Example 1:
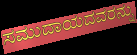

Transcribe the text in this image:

ಸಮುದಾಯದವರನ್ನು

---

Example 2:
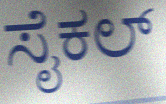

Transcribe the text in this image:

ಸೈಕಲ್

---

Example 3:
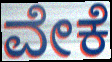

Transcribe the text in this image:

ವೇಕೆ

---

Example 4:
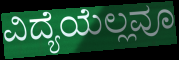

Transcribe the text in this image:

ವಿದ್ಯೆಯೆಲ್ಲವೂ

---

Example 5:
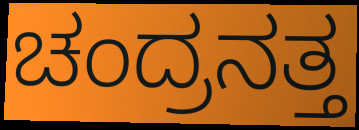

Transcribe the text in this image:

ಚಂದ್ರನತ್ತ